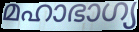
മഹാഭാഗ്യ